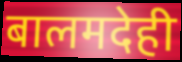
बालमदेही